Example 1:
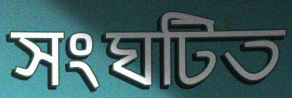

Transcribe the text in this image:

সংঘটিত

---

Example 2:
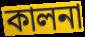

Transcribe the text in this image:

কালনা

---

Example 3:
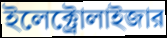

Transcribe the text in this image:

ইলেক্ট্রোলাইজার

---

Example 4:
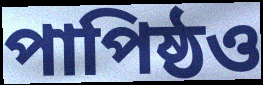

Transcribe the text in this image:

পাপিষ্ঠও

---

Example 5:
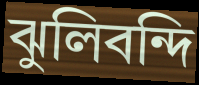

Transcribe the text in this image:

ঝুলিবন্দি